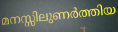
മനസ്സിലുണർത്തിയ